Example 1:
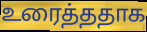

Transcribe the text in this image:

உரைத்ததாக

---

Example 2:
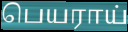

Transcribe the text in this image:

பெயராய்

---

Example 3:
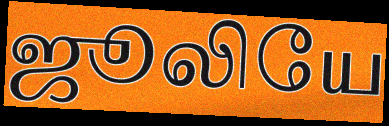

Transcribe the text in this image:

ஜூலியே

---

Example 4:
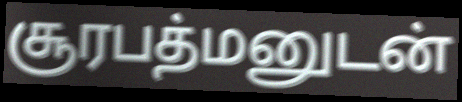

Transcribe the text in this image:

சூரபத்மனுடன்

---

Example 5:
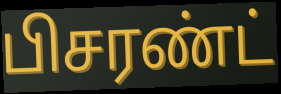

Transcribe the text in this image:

பிசரண்ட்